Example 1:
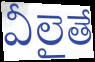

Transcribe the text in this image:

వీలైతే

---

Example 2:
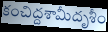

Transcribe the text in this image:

కంచిద్దశామీదృశీం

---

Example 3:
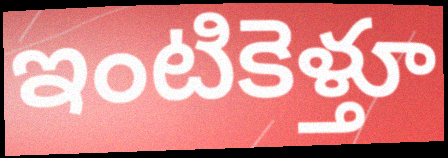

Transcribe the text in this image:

ఇంటికెళ్తూ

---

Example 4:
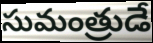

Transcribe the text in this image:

సుమంత్రుడే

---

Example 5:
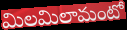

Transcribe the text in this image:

మిలమిలామంటో